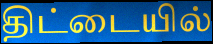
திட்டையில்